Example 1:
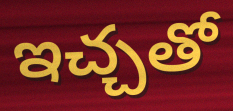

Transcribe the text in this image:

ఇచ్చతో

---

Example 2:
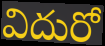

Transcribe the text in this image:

విదురో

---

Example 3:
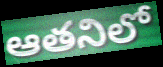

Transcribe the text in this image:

ఆతనిలో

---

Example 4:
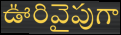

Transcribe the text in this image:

ఊరివైపుగా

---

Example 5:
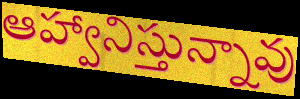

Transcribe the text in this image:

ఆహ్వానిస్తున్నావు